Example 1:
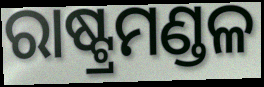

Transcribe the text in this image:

ରାଷ୍ଟ୍ରମଣ୍ଡଳ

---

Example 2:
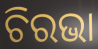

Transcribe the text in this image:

ଚିରଭା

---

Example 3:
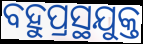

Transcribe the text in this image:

ବହୁପ୍ରସ୍ଥଯୁକ୍ତ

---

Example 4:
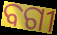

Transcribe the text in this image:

ବଗୀ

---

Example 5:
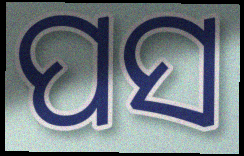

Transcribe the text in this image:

ପସ